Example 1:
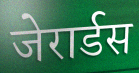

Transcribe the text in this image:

जेरार्डस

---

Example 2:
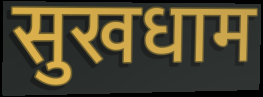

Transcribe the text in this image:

सुखधाम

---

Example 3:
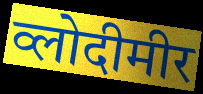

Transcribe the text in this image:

व्लोदीमीर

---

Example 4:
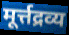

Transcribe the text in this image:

मूर्त्तद्रव्य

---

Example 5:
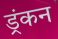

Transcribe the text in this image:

ड्रंकन